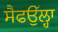
ਸੈਫਉੱਲ੍ਹਾ